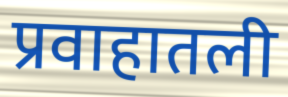
प्रवाहातली